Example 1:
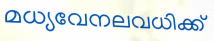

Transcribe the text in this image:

മധ്യവേനലവധിക്ക്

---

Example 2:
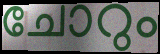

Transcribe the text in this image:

ചോറും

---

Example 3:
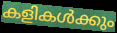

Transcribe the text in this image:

കളികൾക്കും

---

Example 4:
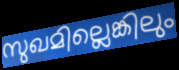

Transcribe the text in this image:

സുഖമില്ലെങ്കിലും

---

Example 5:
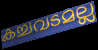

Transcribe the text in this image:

കച്ചവടമല്ല